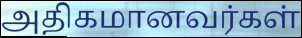
அதிகமானவர்கள்